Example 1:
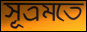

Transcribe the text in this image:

সূত্রমতে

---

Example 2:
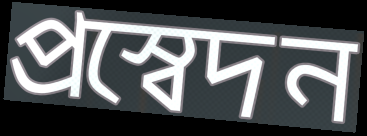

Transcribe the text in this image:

প্রস্বেদন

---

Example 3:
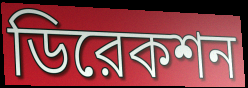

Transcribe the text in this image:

ডিরেকশন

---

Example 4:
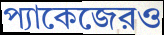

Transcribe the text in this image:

প্যাকেজেরও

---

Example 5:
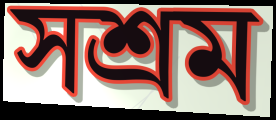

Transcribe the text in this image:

সশ্রম